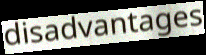
disadvantages